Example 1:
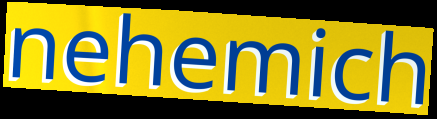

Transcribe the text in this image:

nehemich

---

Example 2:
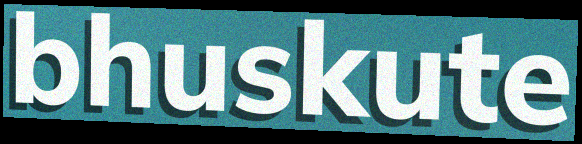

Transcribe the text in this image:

bhuskute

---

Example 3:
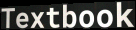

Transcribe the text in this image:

Textbook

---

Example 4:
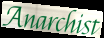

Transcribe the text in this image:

Anarchist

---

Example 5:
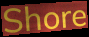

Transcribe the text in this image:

Shore